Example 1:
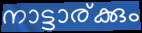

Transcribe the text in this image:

നാട്ടാര്ക്കും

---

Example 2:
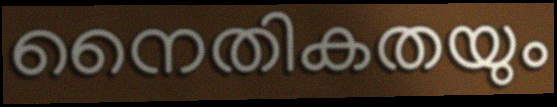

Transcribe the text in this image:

നൈതികതയും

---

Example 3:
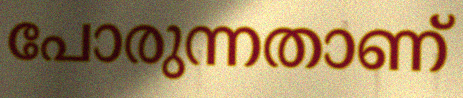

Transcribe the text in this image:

പോരുന്നതാണ്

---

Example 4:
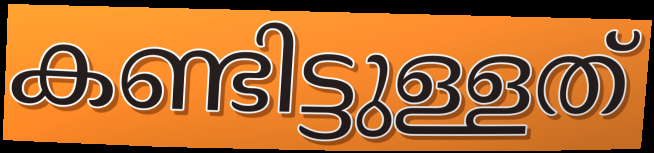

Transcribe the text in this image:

കണ്ടിട്ടുള്ളത്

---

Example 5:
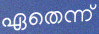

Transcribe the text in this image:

ഏതെന്ന്